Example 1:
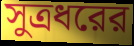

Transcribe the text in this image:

সুত্রধরের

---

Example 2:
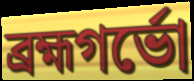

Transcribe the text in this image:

ব্রহ্মগর্ভো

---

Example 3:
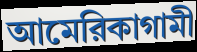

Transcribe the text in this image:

আমেরিকাগামী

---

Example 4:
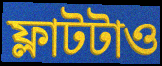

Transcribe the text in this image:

ফ্লাটটাও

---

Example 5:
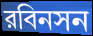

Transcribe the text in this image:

রবিনসন